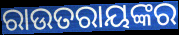
ରାଉତରାୟଙ୍କର